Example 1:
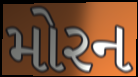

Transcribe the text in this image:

મોરન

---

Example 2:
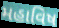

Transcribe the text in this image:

મહાવિષ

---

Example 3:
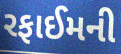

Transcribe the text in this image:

રફાઈમની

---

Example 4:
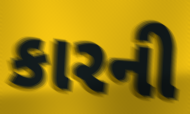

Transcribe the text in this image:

કારની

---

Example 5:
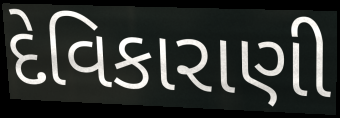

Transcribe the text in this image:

દેવિકારાણી